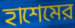
হাশেমের